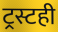
ट्रस्टही